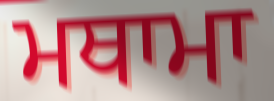
ਮਥਾਮਾ